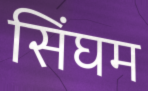
सिंघम